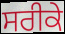
ਸਰੀਕੇ